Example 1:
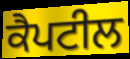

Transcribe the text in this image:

ਕੈਪਟੀਲ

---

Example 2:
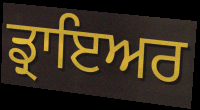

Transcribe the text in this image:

ਡ੍ਰਾਇਅਰ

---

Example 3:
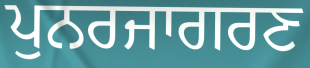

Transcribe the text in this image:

ਪੁਨਰਜਾਗਰਣ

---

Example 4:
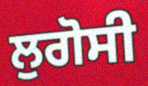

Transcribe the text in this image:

ਲੁਗੋਸੀ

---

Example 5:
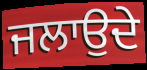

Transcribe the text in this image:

ਜਲਾਉਦੇ